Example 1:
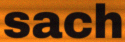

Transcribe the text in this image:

sach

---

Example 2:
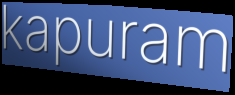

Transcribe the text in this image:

kapuram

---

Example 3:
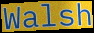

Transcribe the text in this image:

Walsh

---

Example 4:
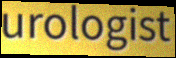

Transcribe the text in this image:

urologist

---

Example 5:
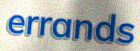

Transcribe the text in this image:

errands